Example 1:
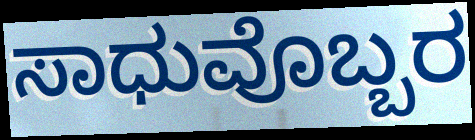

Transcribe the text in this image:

ಸಾಧುವೊಬ್ಬರ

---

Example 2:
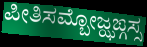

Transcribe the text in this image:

ಪೀತಿಸಮ್ಬೋಜ್ಝಙ್ಗಸ್ಸ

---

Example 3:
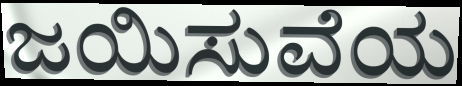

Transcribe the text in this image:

ಜಯಿಸುವೆಯ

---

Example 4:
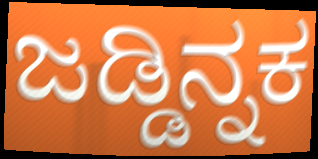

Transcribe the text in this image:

ಜಡ್ಡಿನ್ನಕ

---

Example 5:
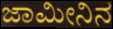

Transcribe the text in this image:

ಜಾಮೀನಿನ